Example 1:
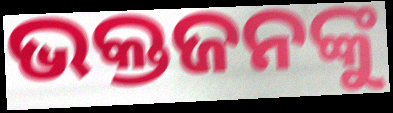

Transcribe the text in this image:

ଭକ୍ତଜନଙ୍କୁ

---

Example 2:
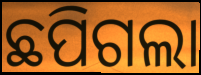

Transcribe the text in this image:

ଛପିଗଲା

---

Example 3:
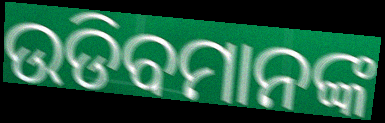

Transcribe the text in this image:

ଉଡିବମାନଙ୍କ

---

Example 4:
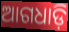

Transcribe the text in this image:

ଆଗଧାଡ଼ି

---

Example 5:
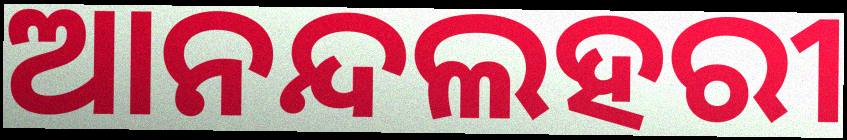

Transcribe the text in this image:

ଆନନ୍ଦଲହରୀ